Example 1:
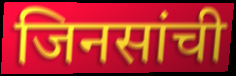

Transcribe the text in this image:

जिनसांची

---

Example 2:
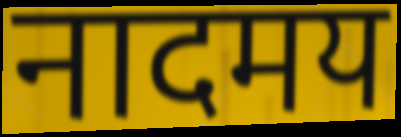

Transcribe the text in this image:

नादमय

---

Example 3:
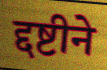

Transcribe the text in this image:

द्दष्टीने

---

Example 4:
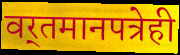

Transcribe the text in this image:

वर्तमानपत्रेही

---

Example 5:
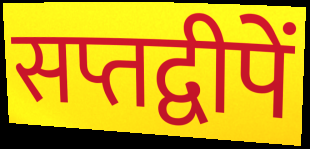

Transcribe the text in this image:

सप्तद्वीपें